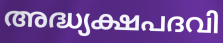
അദ്ധ്യക്ഷപദവി